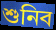
শুনিব